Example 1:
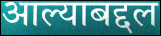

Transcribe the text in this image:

आल्याबद्दल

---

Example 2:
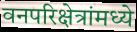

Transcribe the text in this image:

वनपरिक्षेत्रांमध्ये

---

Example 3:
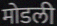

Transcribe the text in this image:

मोडली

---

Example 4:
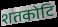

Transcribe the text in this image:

शतकोटि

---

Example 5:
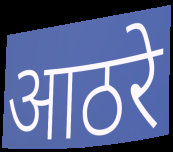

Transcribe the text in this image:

आठरे